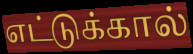
எட்டுக்கால்